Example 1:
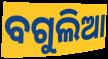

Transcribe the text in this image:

ବଗୁଲିଆ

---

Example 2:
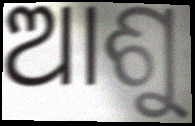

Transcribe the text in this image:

ଆଶୁ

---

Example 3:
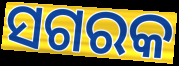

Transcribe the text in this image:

ସଗରକ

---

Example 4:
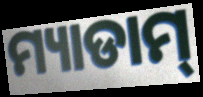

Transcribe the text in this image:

ମ୍ୟାଡାମ୍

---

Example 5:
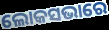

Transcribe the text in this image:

ଲୋକସଭାରେ